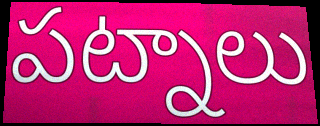
పట్నాలు